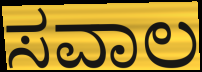
ಸವಾಲ